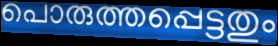
പൊരുത്തപ്പെട്ടതും